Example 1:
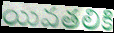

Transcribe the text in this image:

యివతలికి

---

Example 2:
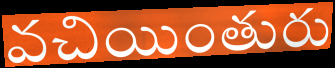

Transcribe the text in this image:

వచియింతురు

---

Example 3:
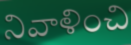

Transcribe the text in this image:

నివాళించి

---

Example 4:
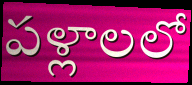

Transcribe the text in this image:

పళ్లాలలో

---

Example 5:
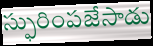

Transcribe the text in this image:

స్ఫురింపజేసాడు